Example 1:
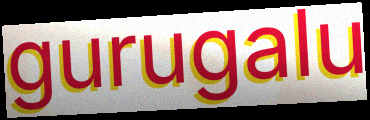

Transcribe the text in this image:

gurugalu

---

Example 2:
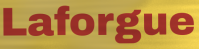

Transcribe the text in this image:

Laforgue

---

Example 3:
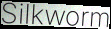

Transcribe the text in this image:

Silkworm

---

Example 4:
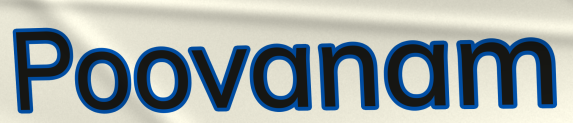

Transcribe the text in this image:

Poovanam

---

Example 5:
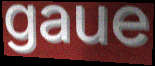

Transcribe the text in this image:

gaue